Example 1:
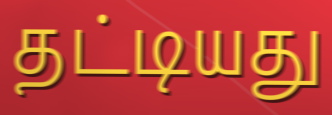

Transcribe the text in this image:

தட்டியது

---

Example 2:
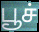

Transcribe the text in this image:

பூச்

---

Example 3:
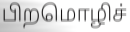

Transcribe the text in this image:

பிறமொழிச்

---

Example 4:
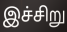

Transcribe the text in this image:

இச்சிறு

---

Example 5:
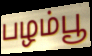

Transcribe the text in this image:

பழம்பூ